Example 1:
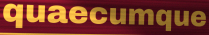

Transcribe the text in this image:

quaecumque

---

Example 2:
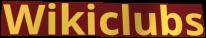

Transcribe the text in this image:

Wikiclubs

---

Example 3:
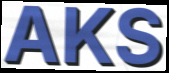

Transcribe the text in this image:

AKS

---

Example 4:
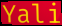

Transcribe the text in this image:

Yali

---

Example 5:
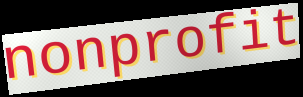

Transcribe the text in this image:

nonprofit